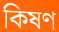
কিষণ